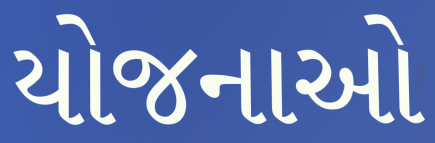
યોજનાઓ